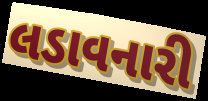
લડાવનારી